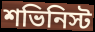
শভিনিস্ট